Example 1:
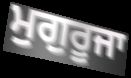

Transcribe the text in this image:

ਮੁਗੁਰੂਜਾ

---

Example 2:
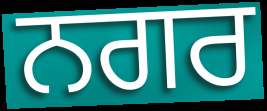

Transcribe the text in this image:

ਨਗਰ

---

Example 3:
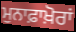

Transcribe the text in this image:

ਮੁਨਾਫ਼ਾਖ਼ੋਰਾਂ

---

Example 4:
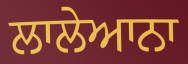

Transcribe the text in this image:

ਲਾਲੇਆਨਾ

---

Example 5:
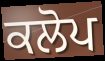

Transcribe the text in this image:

ਕਲੋਪ